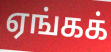
ஏங்கக்